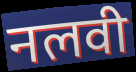
नलवी